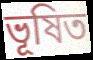
ভূষিত